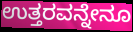
ಉತ್ತರವನ್ನೇನೂ